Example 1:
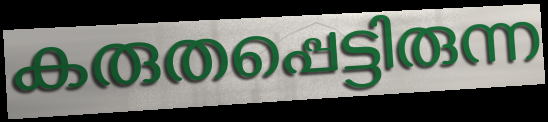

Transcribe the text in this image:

കരുതപ്പെട്ടിരുന്ന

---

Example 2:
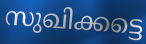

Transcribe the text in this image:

സുഖിക്കട്ടെ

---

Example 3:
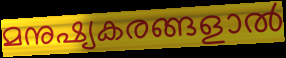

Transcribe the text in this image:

മനുഷ്യകരങ്ങളാൽ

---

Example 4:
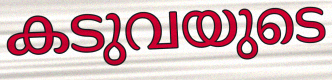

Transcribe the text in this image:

കടുവയുടെ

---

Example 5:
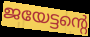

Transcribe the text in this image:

ജയേട്ടന്റെ